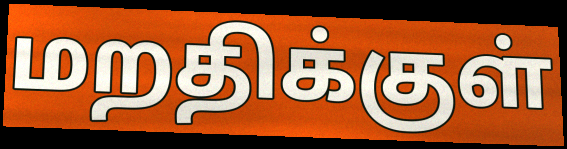
மறதிக்குள்